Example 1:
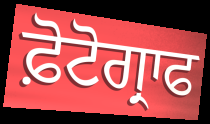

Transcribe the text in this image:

ਫ਼ੋਟੋਗ੍ਰਾਫ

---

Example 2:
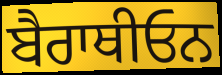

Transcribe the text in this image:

ਬੈਰਾਥੀਓਨ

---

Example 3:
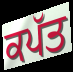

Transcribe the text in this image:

ਕਪੱਤ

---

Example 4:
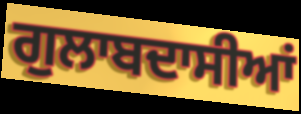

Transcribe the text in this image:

ਗੁਲਾਬਦਾਸੀਆਂ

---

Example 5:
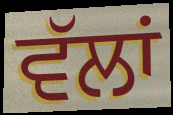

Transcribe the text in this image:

ਵੱਲਾਂ